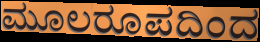
ಮೂಲರೂಪದಿಂದ